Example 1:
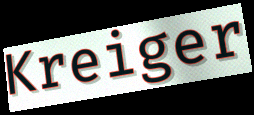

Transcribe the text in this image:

Kreiger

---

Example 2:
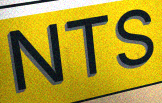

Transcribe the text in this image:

NTS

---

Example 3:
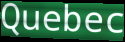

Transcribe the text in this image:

Quebec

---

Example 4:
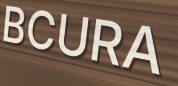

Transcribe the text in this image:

BCURA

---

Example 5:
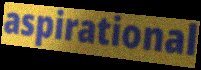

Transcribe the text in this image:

aspirational